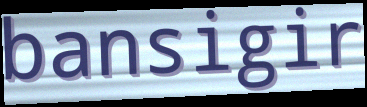
bansigir